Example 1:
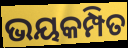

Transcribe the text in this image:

ଭୟକମ୍ପିତ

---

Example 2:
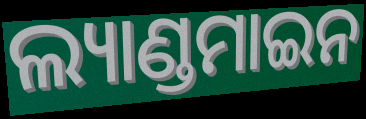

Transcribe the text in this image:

ଲ୍ୟାଣ୍ଡମାଇନ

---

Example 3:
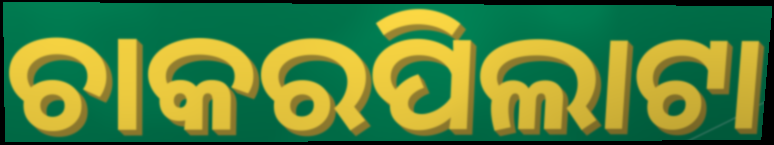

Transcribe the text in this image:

ଚାକରପିଲାଟା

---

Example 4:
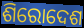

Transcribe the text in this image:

ଶିରୋଦେଶ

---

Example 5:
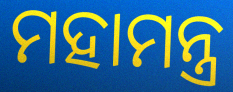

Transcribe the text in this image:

ମହାମନ୍ତ୍ର